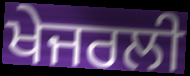
ਖੇਜਰਲੀ